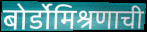
बोर्डोमिश्रणाची